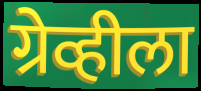
ग्रेव्हीला